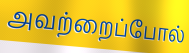
அவற்றைப்போல்